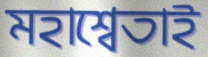
মহাশ্বেতাই